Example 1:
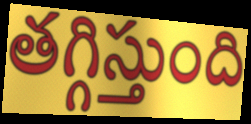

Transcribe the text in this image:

తగ్గిస్తుంది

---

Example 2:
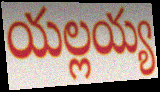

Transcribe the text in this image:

యల్లయ్య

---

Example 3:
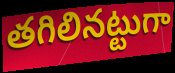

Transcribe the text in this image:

తగిలినట్టుగా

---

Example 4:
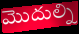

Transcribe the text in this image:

మొదుల్ని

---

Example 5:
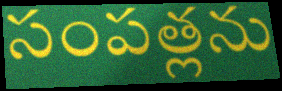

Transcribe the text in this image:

సంపత్లను